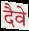
दैवे